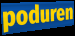
poduren